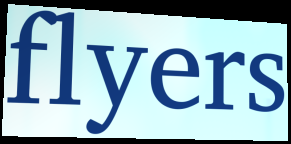
flyers